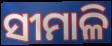
ସୀମାଳି